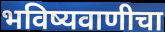
भविष्यवाणीचा